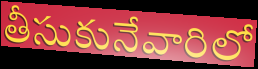
తీసుకునేవారిలో